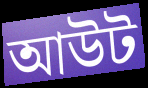
আউট